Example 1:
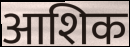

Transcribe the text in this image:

आशिक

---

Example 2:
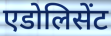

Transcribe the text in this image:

एडोलिसेंट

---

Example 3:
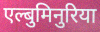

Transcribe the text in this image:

एल्बुमिनुरिया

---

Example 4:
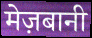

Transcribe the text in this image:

मेज़बानी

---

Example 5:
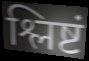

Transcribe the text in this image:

श्लिष्टं